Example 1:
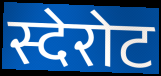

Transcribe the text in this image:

स्देरोट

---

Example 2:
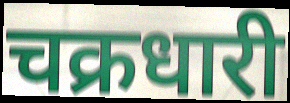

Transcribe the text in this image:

चक्रधारी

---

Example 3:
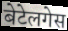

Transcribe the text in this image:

बेटेलगेस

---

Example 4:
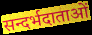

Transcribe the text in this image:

सन्दर्भदाताओं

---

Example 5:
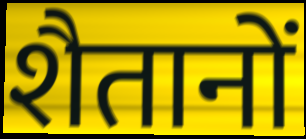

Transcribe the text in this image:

शैतानों